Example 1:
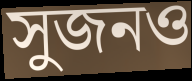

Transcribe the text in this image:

সুজনও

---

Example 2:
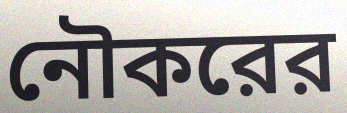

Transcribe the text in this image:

নৌকরের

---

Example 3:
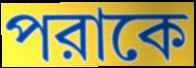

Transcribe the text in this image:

পরাকে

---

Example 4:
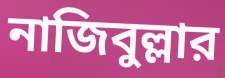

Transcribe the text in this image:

নাজিবুল্লার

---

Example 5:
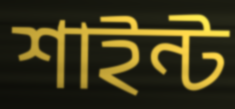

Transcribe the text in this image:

শাইন্ট